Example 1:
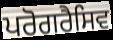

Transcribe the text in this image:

ਪਰੋਗਰੈਸਿਵ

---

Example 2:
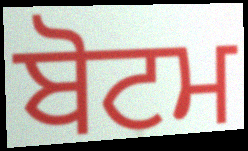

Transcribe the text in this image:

ਬੋਟਮ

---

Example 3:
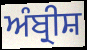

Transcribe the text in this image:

ਅੰਬ੍ਰੀਸ਼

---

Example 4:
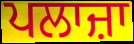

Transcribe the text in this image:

ਪਲਾਜ਼ਾ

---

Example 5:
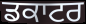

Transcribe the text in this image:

ਡਕਾਟਰ